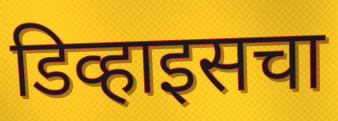
डिव्हाइसचा